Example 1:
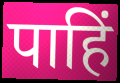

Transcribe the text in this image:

पाहिं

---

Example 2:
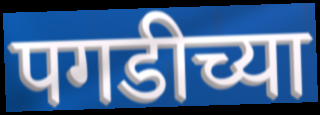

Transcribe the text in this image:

पगडीच्या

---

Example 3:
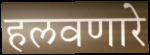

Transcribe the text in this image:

हलवणारे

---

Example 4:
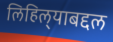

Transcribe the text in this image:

लिहिल्याबद्दल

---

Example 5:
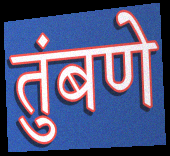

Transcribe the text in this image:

तुंबणे